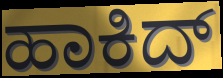
ಹಾಕಿದ್